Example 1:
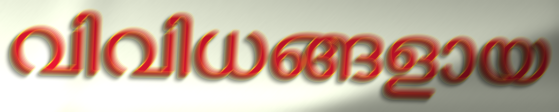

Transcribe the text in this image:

വിവിധങ്ങളായ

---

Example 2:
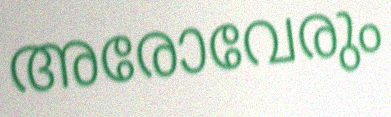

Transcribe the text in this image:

അരോവേരും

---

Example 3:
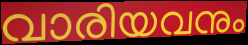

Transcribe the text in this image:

വാരിയവനും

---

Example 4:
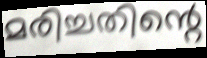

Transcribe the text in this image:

മരിച്ചതിന്റെ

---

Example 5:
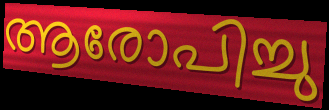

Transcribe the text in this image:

ആരോപിച്ചു